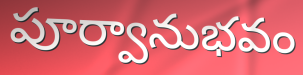
పూర్వానుభవం